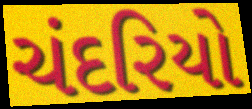
ચંદરિયો